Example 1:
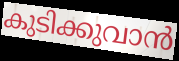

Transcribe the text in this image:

കുടിക്കുവാൻ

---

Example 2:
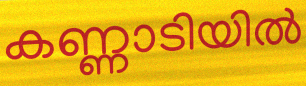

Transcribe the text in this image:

കണ്ണാടിയിൽ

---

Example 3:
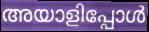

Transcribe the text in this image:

അയാളിപ്പോൾ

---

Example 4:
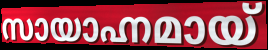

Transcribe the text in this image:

സായാഹ്നമായ്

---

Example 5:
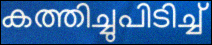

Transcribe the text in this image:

കത്തിച്ചുപിടിച്ച്